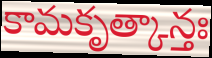
కామకృత్కాన్తః